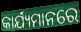
କାର୍ଯ୍ୟମାନରେ